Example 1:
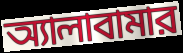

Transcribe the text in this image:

অ্যালাবামার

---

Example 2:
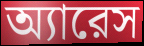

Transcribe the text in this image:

অ্যারেস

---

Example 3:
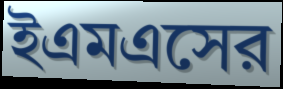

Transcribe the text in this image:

ইএমএসের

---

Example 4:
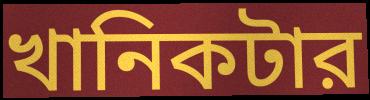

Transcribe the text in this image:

খানিকটার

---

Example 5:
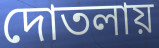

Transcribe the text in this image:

দোতলায়